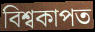
বিশ্বকাপত